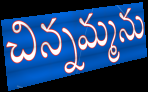
చిన్నమ్మను